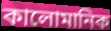
কালোমানিক